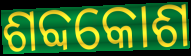
ଶବ୍ଦକୋଶ